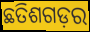
ଛତିଶଗଡ଼ର